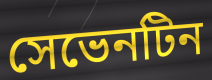
সেভেনটিন